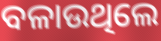
ବଳାଉଥିଲେ